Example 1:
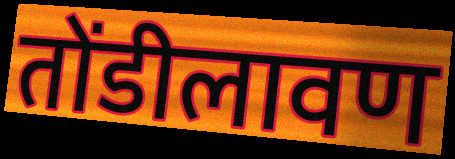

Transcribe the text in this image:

तोंडीलावण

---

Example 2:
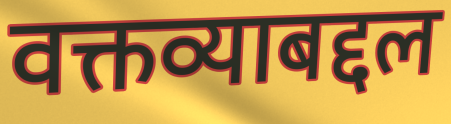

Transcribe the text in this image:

वक्तव्याबद्दल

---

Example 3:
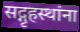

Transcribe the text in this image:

सद्गृहस्थांना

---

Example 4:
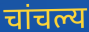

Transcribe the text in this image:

चांचल्य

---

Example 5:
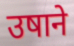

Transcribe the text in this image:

उषाने